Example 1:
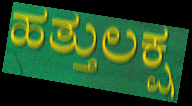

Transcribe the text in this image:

ಹತ್ತುಲಕ್ಷ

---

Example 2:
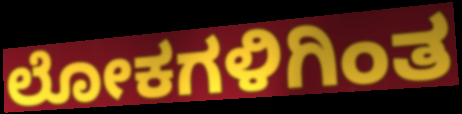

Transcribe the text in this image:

ಲೋಕಗಳಿಗಿಂತ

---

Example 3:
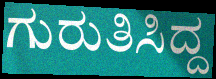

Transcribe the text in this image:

ಗುರುತಿಸಿದ್ದ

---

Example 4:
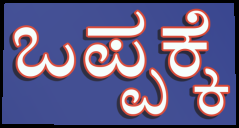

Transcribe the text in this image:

ಒಪ್ಪಕ್ಕೆ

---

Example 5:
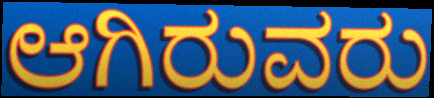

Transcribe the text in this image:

ಆಗಿರುವರು